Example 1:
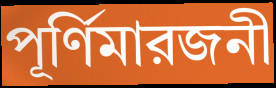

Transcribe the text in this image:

পূর্ণিমারজনী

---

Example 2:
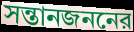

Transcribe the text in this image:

সন্তানজননের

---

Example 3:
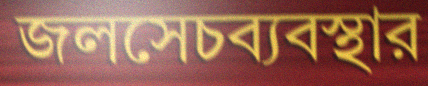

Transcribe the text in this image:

জলসেচব্যবস্থার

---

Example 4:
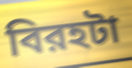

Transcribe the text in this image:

বিরহটা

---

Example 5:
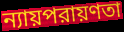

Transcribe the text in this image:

ন্যায়পরায়ণতা